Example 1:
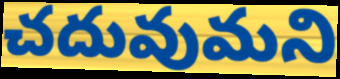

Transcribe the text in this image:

చదువుమని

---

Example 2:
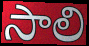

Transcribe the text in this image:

సాలి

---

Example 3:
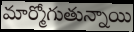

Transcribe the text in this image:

మార్మోగుతున్నాయి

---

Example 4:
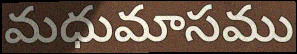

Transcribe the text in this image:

మధుమాసము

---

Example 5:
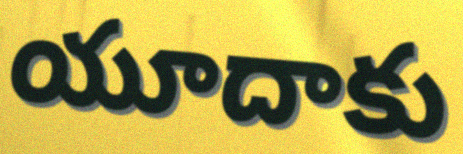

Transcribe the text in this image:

యూదాకు